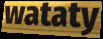
wataty